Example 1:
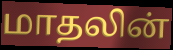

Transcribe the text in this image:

மாதலின்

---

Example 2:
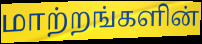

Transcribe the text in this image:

மாற்றங்களின்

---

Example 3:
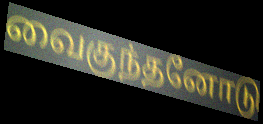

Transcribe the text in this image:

வைகுந்தனோடு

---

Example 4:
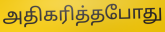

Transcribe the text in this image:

அதிகரித்தபோது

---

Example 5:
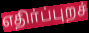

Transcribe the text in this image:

எதிர்ப்புறச்